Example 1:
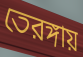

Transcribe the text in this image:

তেরঙ্গায়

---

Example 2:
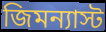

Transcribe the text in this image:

জিমন্যাস্ট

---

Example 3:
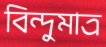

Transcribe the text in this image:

বিন্দুমাত্র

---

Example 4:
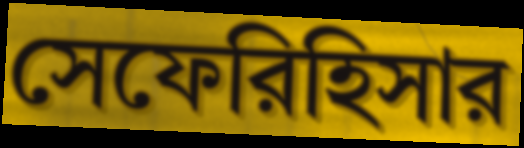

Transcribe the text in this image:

সেফেরিহিসার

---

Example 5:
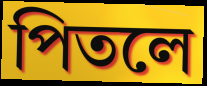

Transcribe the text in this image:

পিতলে